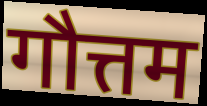
गौत्तम